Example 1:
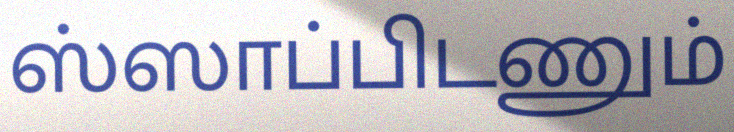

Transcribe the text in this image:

ஸ்ஸாப்பிடணும்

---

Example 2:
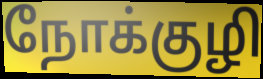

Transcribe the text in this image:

நோக்குழி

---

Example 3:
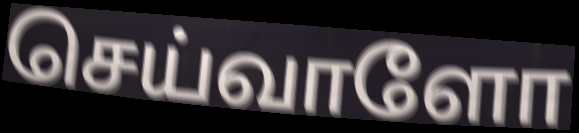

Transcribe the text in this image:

செய்வாளோ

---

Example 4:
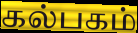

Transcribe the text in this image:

கல்பகம்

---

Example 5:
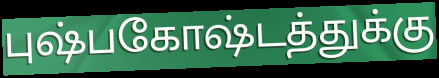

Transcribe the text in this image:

புஷ்பகோஷ்டத்துக்கு